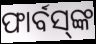
ଫାର୍ବସ୍‌ଙ୍କ